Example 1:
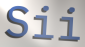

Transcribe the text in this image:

Sii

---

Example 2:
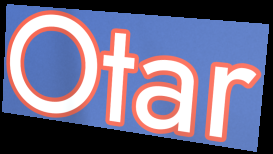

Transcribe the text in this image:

Otar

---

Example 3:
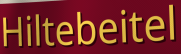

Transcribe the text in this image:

Hiltebeitel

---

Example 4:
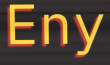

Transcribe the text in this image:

Eny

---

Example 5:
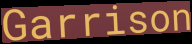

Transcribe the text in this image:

Garrison